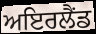
ਅਇਰਲੈਂਡ